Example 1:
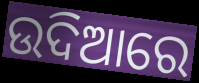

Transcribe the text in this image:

ଉଦିଆରେ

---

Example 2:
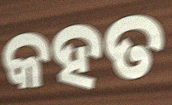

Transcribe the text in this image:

କହତ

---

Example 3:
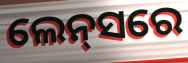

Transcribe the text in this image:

ଲେନ୍‌ସରେ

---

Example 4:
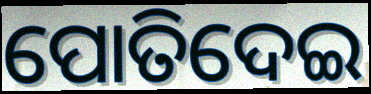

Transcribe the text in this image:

ପୋତିଦେଇ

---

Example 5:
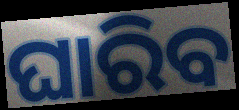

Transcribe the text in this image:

ଘାରିବ